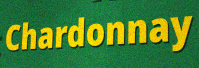
Chardonnay